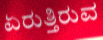
ಏರುತ್ತಿರುವ